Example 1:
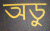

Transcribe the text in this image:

অডু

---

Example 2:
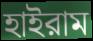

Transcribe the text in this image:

হাইরাম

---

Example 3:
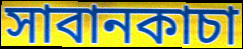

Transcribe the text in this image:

সাবানকাচা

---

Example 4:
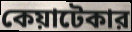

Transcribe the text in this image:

কেয়াটেকার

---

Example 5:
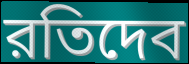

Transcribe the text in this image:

রতিদেব